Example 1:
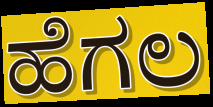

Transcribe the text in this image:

ಹೆಗಲ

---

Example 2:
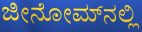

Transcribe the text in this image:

ಜೀನೋಮ್‌ನಲ್ಲಿ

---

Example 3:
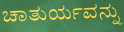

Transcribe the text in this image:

ಚಾತುರ್ಯವನ್ನು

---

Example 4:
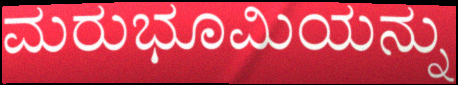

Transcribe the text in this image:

ಮರುಭೂಮಿಯನ್ನು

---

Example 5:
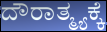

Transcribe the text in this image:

ದೌರಾತ್ಮ್ಯಕ್ಕೆ